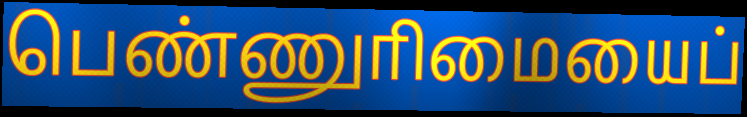
பெண்ணுரிமையைப்